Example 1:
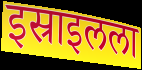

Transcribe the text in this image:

इस्राइलला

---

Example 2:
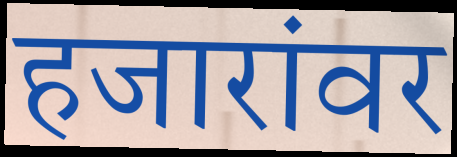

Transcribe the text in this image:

हजारांवर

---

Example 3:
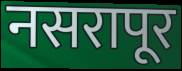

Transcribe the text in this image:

नसरापूर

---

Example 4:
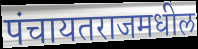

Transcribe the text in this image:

पंचायतराजमधील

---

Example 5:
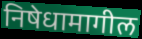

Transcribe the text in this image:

निषेधामागील